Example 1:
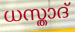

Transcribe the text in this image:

ധസ്താദ്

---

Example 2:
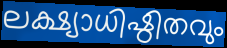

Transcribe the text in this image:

ലക്ഷ്യാധിഷ്ഠിതവും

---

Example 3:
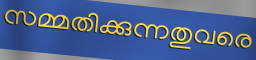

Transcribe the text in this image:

സമ്മതിക്കുന്നതുവരെ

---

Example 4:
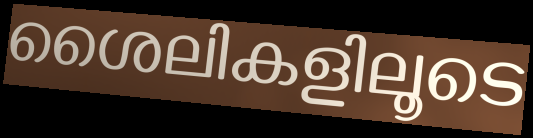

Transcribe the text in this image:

ശൈലികളിലൂടെ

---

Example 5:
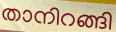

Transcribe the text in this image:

താനിറങ്ങി